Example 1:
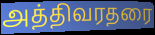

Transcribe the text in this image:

அத்திவரதரை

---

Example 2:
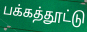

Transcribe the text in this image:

பக்கத்தூட்டு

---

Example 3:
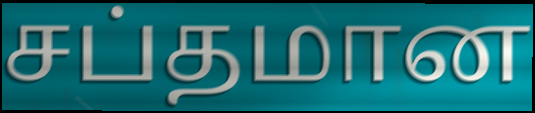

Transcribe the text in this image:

சப்தமான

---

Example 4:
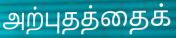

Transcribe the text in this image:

அற்புதத்தைக்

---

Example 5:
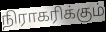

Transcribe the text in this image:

நிராகரிக்கும்